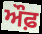
ਔਫ਼